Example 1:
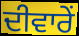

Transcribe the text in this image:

ਦੀਵਾਰੇਂ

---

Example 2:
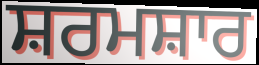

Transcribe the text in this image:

ਸ਼ਰਮਸ਼ਾਰ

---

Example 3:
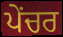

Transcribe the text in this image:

ਪੇਂਚਰ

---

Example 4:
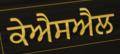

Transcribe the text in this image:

ਕੇਐਸਐਲ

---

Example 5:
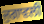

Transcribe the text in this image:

ਜੁਗਾਵਲੀ